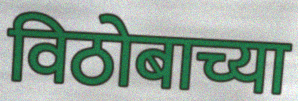
विठोबाच्या